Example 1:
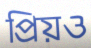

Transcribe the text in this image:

প্রিয়ও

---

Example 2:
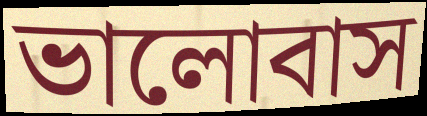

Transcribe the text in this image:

ভালোবাস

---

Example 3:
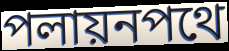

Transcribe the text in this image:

পলায়নপথে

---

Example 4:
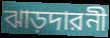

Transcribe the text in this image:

ঝাড়দারনী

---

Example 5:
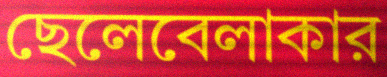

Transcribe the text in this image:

ছেলেবেলাকার